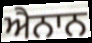
ਐਨਾਨ